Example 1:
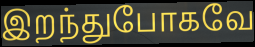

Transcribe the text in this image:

இறந்துபோகவே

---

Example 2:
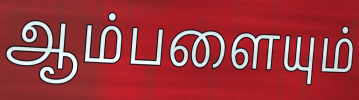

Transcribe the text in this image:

ஆம்பளையும்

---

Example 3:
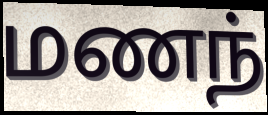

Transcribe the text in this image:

மணந்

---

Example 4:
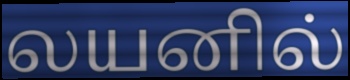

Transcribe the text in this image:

லயனில்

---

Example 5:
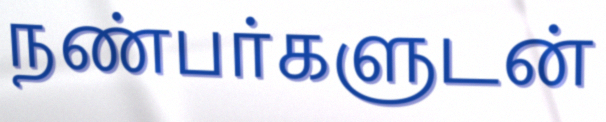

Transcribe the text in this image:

நண்பர்களுடன்